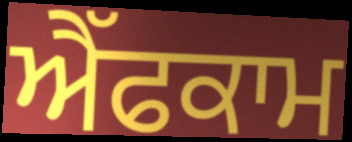
ਐੱਫਕਾਮ